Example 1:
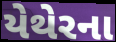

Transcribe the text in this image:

યેથેરના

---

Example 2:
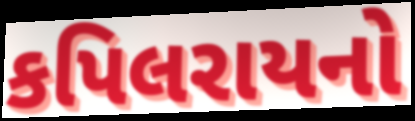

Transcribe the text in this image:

કપિલરાયનો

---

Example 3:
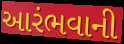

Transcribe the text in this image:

આરંભવાની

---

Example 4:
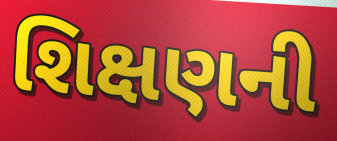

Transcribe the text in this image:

શિક્ષણની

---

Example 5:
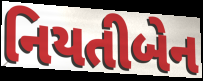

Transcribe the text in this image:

નિયતીબેન